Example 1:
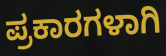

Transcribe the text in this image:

ಪ್ರಕಾರಗಳಾಗಿ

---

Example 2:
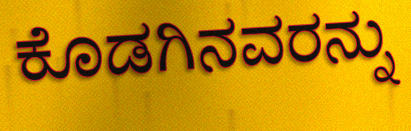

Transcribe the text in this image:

ಕೊಡಗಿನವರನ್ನು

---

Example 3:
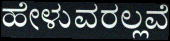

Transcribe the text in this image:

ಹೇಳುವರಲ್ಲವೆ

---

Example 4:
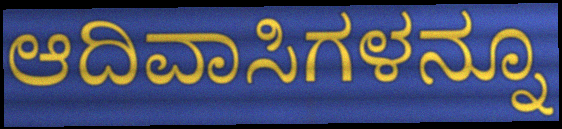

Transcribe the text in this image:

ಆದಿವಾಸಿಗಳನ್ನೂ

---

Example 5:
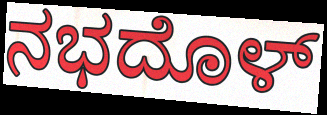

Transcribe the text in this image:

ನಭದೊಳ್